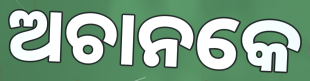
ଅଚାନକେ